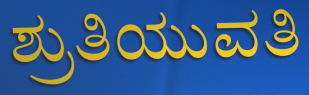
ಶ್ರುತಿಯುವತಿ